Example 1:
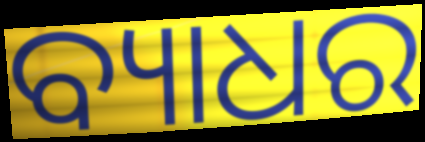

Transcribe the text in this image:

ବ୍ୟାଧର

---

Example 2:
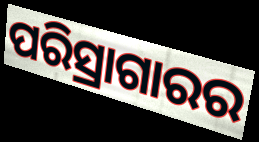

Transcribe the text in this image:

ପରିସ୍ରାଗାରର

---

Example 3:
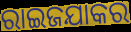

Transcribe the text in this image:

ରାଇଜଯାକର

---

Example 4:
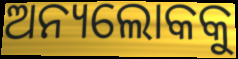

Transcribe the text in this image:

ଅନ୍ୟଲୋକକୁ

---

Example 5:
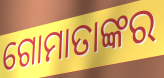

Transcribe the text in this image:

ଗୋମାତାଙ୍କର